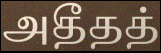
அதீதத்